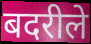
बदरीले